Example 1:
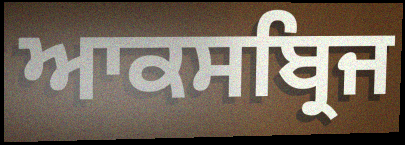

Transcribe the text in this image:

ਆਕਸਬ੍ਰਿਜ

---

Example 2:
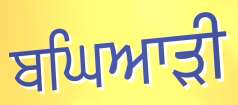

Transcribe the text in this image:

ਬਘਿਆੜੀ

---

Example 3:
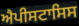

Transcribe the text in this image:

ਐਪੀਸਟਾਸਿਸ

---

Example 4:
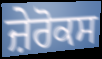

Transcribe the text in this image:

ਜ਼ੇਰੋਕਸ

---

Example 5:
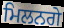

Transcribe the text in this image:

ਮਿਲਨਗੇ